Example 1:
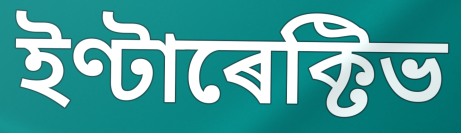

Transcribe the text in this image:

ইণ্টাৰেক্টিভ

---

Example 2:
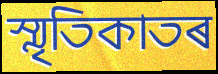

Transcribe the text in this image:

স্মৃতিকাতৰ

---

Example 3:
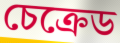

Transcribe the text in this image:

চেক্ৰেড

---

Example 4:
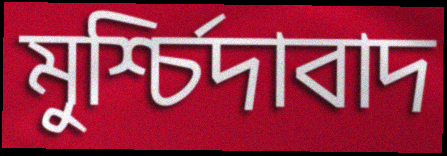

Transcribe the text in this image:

মুৰ্শ্চিদাবাদ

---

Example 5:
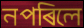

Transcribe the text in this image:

নপৰিলে